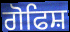
ਗੋਫਿਸ਼